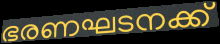
ഭരണഘടനക്ക്